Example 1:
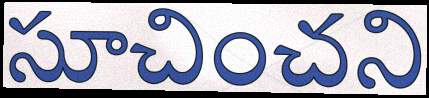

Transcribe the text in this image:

సూచించని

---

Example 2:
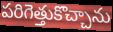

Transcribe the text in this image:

పరిగెత్తుకొచ్చాను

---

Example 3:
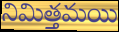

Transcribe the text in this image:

నిమిత్తమయి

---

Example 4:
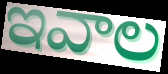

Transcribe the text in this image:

ఇవాల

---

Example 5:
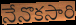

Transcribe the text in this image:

నేనొకసారి